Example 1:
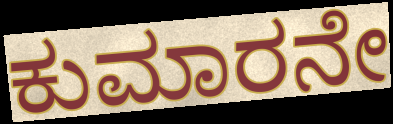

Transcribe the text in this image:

ಕುಮಾರನೇ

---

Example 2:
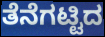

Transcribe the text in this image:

ತೆನೆಗಟ್ಟಿದ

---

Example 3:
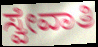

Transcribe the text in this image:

ಸ್ವೇವಾತಿ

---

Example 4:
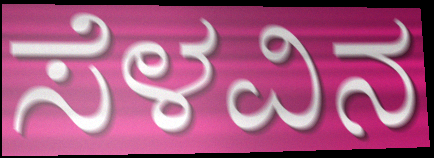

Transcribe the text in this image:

ಸೆಳವಿನ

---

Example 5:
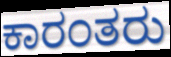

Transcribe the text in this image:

ಕಾರಂತರು